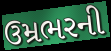
ઉમ્રભરની